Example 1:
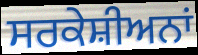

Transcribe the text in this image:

ਸਰਕੇਸ਼ੀਅਨਾਂ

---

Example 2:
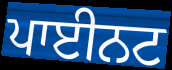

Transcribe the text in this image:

ਪਾਈਨਟ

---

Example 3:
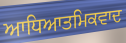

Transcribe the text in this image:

ਆਧਿਆਤਮਿਕਵਾਦ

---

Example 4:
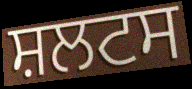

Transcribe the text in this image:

ਸ਼ਲਟਸ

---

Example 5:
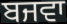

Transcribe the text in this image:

ਬਜਵਾ